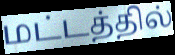
மட்டத்தில்